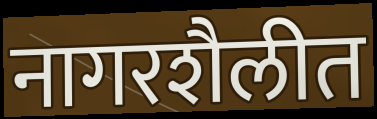
नागरशैलीत